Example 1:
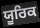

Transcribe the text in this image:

ਯੂਰਿਕ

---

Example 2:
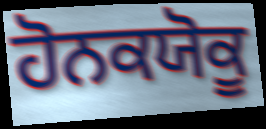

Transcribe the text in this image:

ਹੋਨਕਯੋਕੂ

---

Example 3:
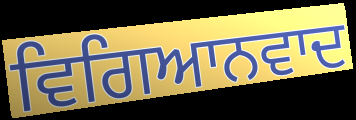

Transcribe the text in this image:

ਵਿਗਿਆਨਵਾਦ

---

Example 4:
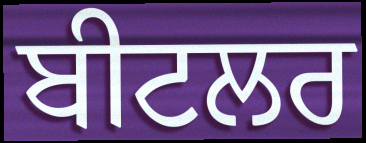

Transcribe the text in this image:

ਬੀਟਲਰ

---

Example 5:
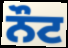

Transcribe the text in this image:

ਨੌਟ